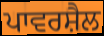
ਪਾਵਰਸ਼ੈਲ